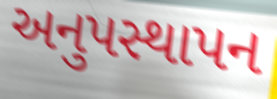
અનુપસ્થાપન